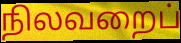
நிலவறைப்